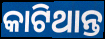
କାଟିଥାନ୍ତ